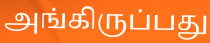
அங்கிருப்பது